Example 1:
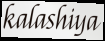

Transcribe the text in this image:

kalashiya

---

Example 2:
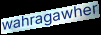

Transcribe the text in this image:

wahragawher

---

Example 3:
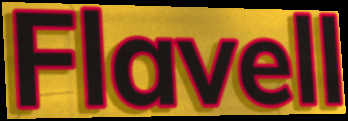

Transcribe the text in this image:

Flavell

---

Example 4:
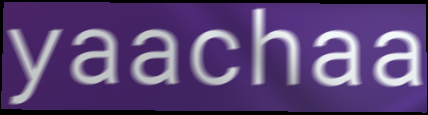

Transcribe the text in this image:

yaachaa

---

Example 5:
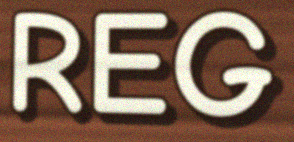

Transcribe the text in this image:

REG